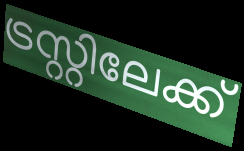
ട്രസ്റ്റിലേക്ക്